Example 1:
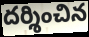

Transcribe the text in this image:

దర్శించిన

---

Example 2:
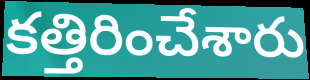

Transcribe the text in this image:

కత్తిరించేశారు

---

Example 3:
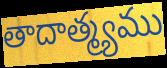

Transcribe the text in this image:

తాదాత్మ్యము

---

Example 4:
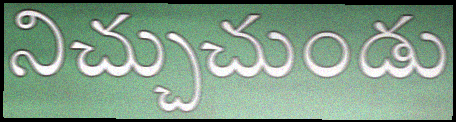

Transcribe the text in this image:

నిచ్చుచుండు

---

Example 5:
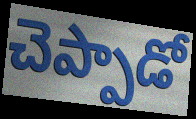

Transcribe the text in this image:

చెప్పాడో